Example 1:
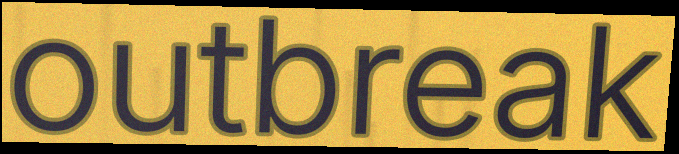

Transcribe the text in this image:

outbreak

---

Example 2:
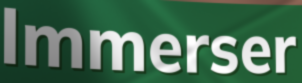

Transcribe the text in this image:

Immerser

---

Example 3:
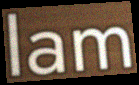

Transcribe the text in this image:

Iam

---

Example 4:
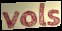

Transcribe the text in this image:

vols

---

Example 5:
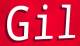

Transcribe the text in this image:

Gil